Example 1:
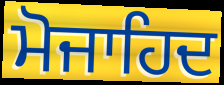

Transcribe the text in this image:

ਮੋਜਾਹਿਦ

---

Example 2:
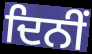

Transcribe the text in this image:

ਦਿਨੀਂ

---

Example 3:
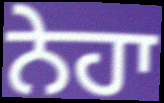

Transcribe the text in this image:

ਨੇਹਾ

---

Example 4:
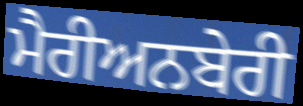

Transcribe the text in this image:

ਮੈਰੀਅਨਬੇਰੀ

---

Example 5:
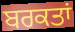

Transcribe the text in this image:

ਬਰਕਤਾਂ